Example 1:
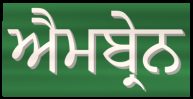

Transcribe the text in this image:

ਐਮਬ੍ਰੇਨ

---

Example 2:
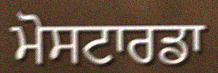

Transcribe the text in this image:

ਮੋਸਟਾਰਡਾ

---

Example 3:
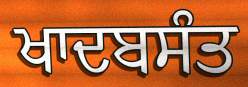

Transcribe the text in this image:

ਖਾਦਬਸੰਤ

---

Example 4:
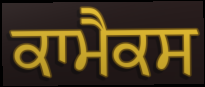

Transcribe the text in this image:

ਕਾਮੈਕਸ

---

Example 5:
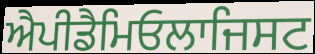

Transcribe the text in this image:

ਐਪੀਡੈਮਿਓਲਾਜਿਸਟ